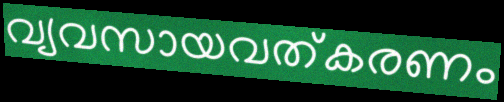
വ്യവസായവത്കരണം